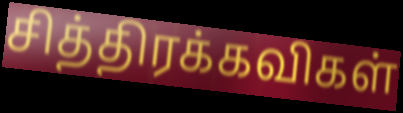
சித்திரக்கவிகள்